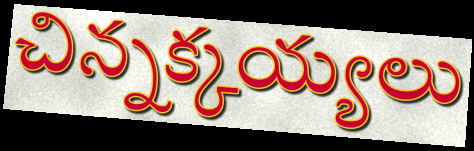
చిన్నక్కయ్యలు